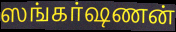
ஸங்கர்ஷணன்